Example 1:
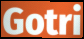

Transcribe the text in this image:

Gotri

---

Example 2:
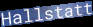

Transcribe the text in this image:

Hallstatt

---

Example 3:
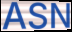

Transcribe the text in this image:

ASN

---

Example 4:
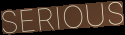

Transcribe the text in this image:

SERIOUS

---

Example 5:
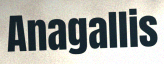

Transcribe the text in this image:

Anagallis